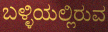
ಬಳ್ಳಿಯಲ್ಲಿರುವ